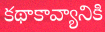
కథాకావ్యానికి